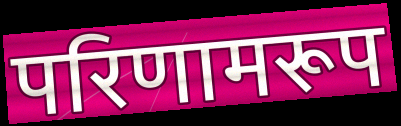
परिणामरूप